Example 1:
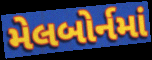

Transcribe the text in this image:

મેલબોર્નમાં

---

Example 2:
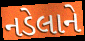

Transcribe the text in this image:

નડેલાને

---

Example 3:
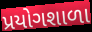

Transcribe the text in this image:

પ્રયોગશાળા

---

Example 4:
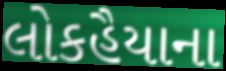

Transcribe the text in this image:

લોકહૈયાના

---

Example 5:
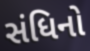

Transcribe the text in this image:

સંધિનો